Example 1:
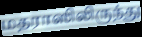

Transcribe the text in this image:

மதராஸிலிருந்து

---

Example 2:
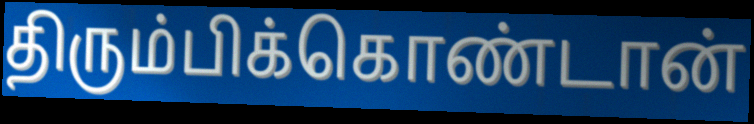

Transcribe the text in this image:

திரும்பிக்கொண்டான்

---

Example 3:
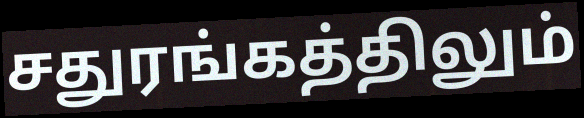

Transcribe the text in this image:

சதுரங்கத்திலும்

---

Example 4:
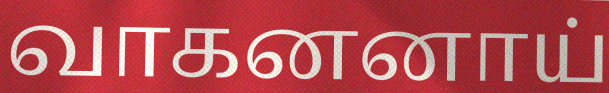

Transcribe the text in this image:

வாகனனாய்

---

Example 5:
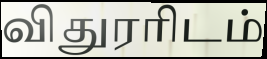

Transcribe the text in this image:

விதுரரிடம்